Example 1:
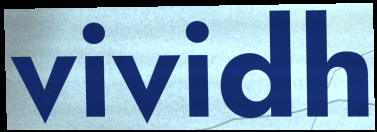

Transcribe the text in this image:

vividh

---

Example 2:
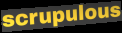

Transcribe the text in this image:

scrupulous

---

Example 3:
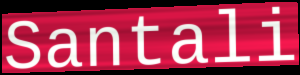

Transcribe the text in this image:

Santali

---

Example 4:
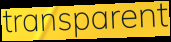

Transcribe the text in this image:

transparent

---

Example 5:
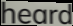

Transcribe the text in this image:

heard